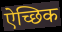
ऐच्छिक